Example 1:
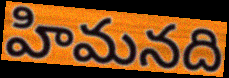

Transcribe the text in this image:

హిమనది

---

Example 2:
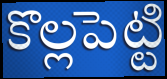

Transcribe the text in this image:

కొల్లపెట్టి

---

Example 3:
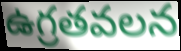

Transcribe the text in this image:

ఉగ్రతవలన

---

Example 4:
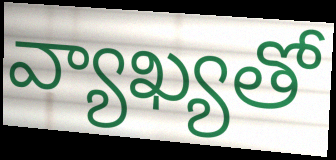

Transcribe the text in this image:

వ్యాఖ్యతో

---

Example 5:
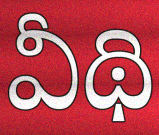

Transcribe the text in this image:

వీథి